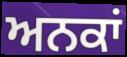
ਅਨਕਾਂ